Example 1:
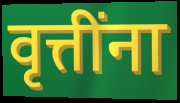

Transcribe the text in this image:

वृत्तींना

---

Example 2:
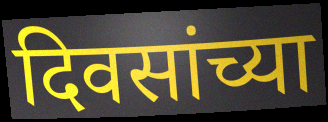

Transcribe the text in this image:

दिवसांच्या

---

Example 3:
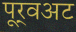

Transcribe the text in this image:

पूर्वअट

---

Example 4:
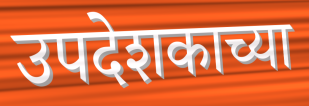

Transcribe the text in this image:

उपदेशकाच्या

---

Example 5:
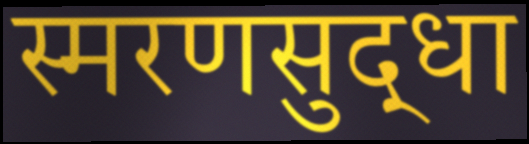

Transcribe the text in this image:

स्मरणसुद्धा